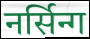
नर्सिन्ग